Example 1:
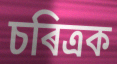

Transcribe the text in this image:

চৰিত্ৰক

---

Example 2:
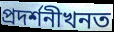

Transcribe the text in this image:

প্ৰদৰ্শনীখনত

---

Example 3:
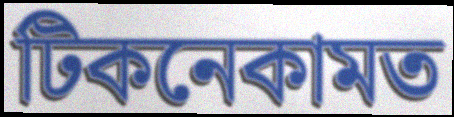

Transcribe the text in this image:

টিকনেকামত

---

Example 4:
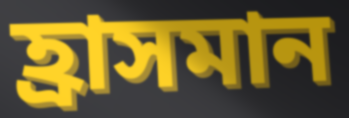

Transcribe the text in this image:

হ্ৰাসমান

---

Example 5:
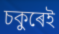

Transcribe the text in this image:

চকুৰেই